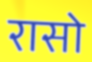
रासो